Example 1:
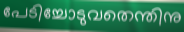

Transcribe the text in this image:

പേടിച്ചോടുവതെന്തിനു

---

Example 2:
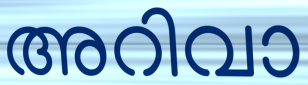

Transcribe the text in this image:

അറിവാ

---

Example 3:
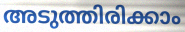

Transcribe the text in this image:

അടുത്തിരിക്കാം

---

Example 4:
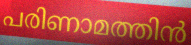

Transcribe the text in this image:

പരിണാമത്തിൻ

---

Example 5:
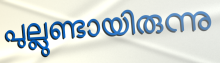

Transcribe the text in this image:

പുല്ലുണ്ടായിരുന്നു